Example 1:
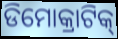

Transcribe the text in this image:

ଡିମୋକ୍ରାଟିକ୍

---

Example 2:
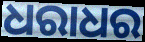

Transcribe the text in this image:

ଧରାଧର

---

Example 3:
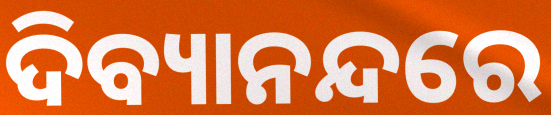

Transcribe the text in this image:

ଦିବ୍ୟାନନ୍ଦରେ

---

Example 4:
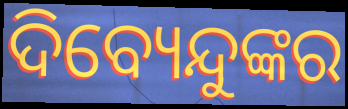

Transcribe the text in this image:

ଦିବ୍ୟେନ୍ଦୁଙ୍କର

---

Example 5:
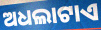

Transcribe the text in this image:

ଅଧଲାଟାଏ